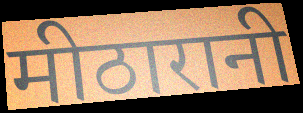
मीठारानी